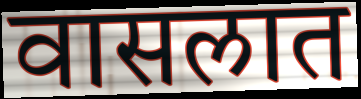
वासलात